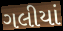
ગલીયાં